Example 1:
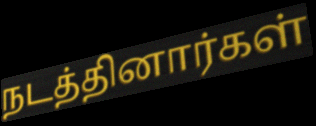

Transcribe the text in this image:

நடத்தினார்கள்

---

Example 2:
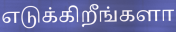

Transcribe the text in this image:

எடுக்கிறீங்களா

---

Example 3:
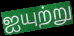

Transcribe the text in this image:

ஐயுற்று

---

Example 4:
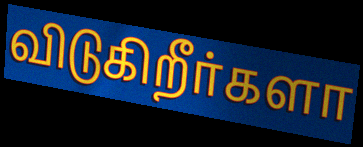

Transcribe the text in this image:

விடுகிறீர்களா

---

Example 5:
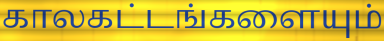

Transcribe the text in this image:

காலகட்டங்களையும்